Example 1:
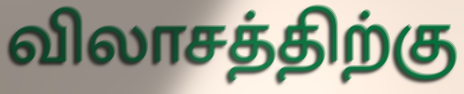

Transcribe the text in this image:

விலாசத்திற்கு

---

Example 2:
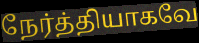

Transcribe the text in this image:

நேர்த்தியாகவே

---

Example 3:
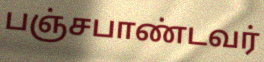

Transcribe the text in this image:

பஞ்சபாண்டவர்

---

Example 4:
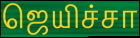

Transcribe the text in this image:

ஜெயிச்சா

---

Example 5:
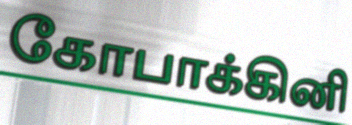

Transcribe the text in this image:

கோபாக்கினி